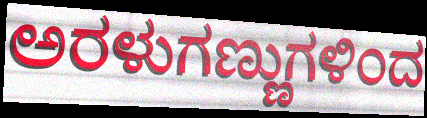
ಅರಳುಗಣ್ಣುಗಳಿಂದ